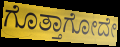
ಗೊತ್ತಾಗೋದೇ